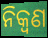
ନିକ୍ୱଣ